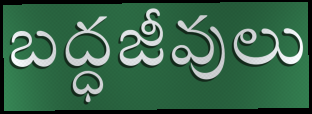
బద్ధజీవులు